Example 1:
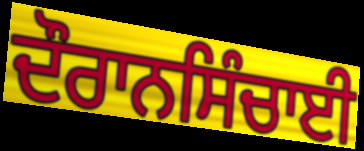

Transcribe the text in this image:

ਦੌਰਾਨਸਿੰਚਾਈ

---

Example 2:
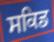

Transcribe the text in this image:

ਸਕਿਡ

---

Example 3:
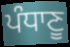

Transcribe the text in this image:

ਪੰਧਾਣੂ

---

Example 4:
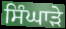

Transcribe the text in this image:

ਸਿੰਘਾੜੇ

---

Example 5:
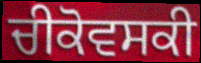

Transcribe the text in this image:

ਚੀਕੋਵਸਕੀ